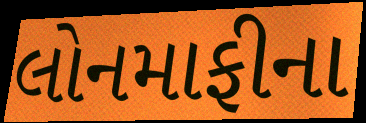
લોનમાફીના